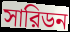
সারিডন